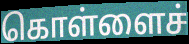
கொள்ளைச்